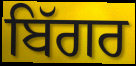
ਬਿੱਗਰ